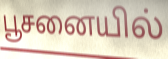
பூசனையில்